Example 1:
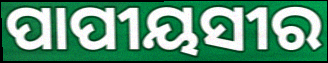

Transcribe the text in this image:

ପାପୀୟସୀର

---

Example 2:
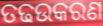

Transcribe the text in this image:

ତଢଉକରଣ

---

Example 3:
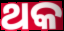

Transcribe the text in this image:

ଥକ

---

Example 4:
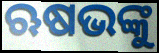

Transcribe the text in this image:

ଋଷଭଙ୍କୁ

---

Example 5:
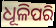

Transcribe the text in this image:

ଧୂଳିପରି